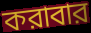
করাবার